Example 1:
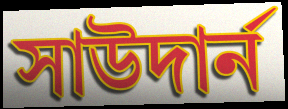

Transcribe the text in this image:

সাউদার্ন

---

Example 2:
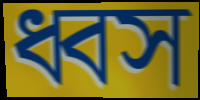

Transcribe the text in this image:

ধ্বস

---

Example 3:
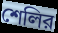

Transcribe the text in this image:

শেলির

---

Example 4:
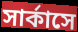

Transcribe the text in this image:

সার্কাসে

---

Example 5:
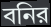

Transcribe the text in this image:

বনির